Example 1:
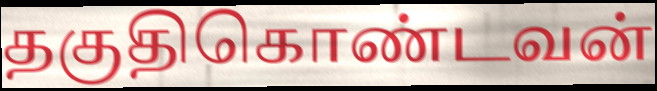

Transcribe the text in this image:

தகுதிகொண்டவன்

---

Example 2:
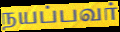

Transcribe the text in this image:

நயப்பவர்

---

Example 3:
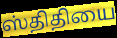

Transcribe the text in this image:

ஸ்திதியை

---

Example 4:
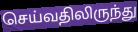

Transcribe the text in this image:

செய்வதிலிருந்து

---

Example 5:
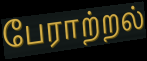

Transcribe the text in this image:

பேராற்றல்